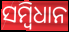
ସମ୍ୱିଧାନ